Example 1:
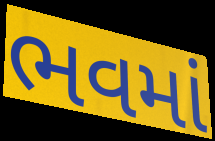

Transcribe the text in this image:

ભવમાં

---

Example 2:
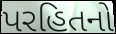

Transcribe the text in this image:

પરહિતનો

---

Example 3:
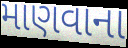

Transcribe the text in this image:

માણવાના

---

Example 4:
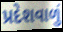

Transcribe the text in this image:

પ્રદેશવાળું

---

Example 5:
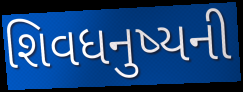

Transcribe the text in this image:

શિવધનુષ્યની